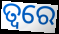
ତ୍ଵରେ